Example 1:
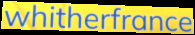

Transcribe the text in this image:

whitherfrance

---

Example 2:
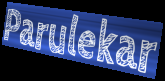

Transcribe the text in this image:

Parulekar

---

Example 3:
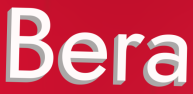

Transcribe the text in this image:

Bera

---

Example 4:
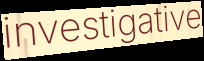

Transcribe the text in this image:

investigative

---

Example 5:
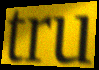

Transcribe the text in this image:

tru